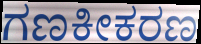
ಗಣಕೀಕರಣ